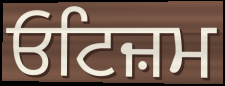
ਓਟਿਜ਼ਮ